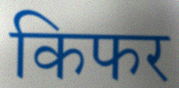
किफर